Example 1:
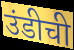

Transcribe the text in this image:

उंडीची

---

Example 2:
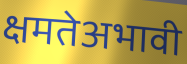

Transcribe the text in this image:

क्षमतेअभावी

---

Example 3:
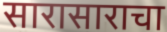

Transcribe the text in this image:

सारासाराचा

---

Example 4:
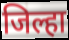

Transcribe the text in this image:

जिल्हा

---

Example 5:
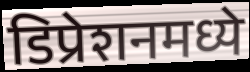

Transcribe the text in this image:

डिप्रेशनमध्ये